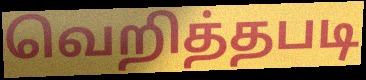
வெறித்தபடி